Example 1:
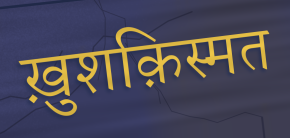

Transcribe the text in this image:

ख़ुशक़िस्मत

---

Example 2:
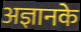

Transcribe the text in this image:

अज्ञानके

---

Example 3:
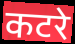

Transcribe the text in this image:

कटरे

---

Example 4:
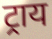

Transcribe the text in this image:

ट्राय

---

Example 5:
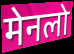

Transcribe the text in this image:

मेनलो